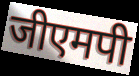
जीएमपी